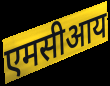
एमसीआय